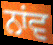
ਨਾਂਵ